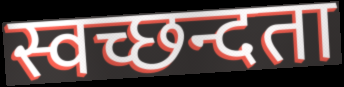
स्वच्छन्दता